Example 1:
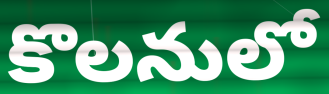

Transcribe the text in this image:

కొలనులో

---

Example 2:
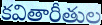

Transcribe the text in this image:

కవితారీతుల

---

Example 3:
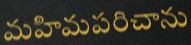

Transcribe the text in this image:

మహిమపరిచాను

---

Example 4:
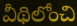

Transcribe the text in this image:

వీథిలోంచి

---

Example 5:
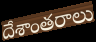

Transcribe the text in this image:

దేశాంతరాలు